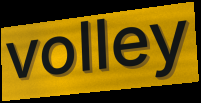
volley